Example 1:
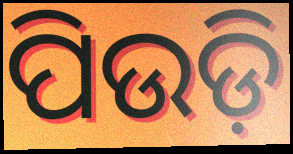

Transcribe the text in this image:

ପିଉଡ଼ି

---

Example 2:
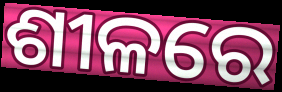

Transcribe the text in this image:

ଶୀଳରେ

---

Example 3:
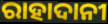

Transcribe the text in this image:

ରାହାଦାନୀ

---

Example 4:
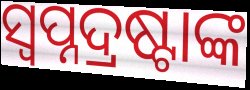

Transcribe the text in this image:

ସ୍ୱପ୍ନଦ୍ରଷ୍ଟାଙ୍କ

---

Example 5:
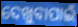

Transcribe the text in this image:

ଦେଖୁବାପାଇଁ